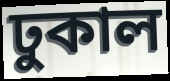
ঢুকাল